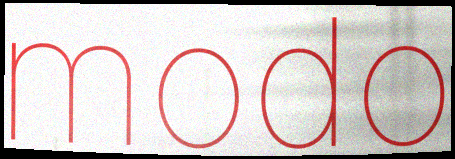
modo